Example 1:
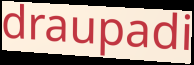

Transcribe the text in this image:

draupadi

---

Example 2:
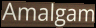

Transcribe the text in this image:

Amalgam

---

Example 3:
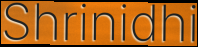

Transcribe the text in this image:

Shrinidhi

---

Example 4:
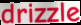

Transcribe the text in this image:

drizzle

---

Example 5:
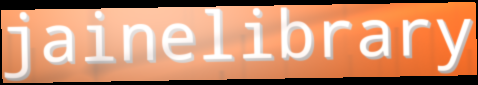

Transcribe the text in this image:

jainelibrary